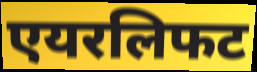
एयरलिफट